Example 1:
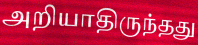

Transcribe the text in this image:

அறியாதிருந்தது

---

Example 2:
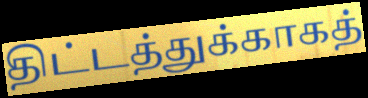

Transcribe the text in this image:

திட்டத்துக்காகத்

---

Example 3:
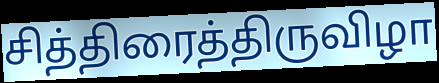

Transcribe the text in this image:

சித்திரைத்திருவிழா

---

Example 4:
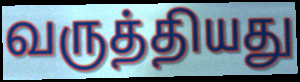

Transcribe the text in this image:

வருத்தியது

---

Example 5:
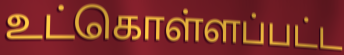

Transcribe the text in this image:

உட்கொள்ளப்பட்ட